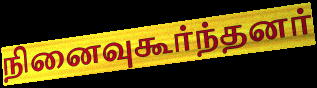
நினைவுகூர்ந்தனர்